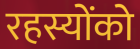
रहस्योंको